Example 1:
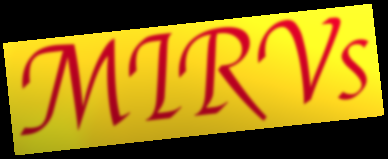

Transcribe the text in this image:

MIRVs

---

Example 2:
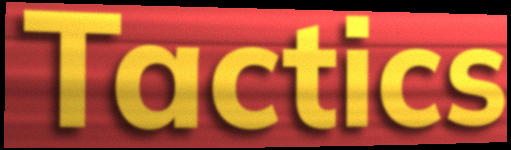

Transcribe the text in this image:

Tactics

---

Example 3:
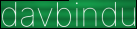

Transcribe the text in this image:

davbindu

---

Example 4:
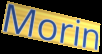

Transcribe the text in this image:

Morin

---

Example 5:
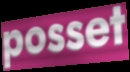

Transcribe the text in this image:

posset